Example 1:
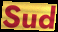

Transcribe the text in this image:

Sud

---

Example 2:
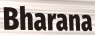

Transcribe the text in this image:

Bharana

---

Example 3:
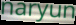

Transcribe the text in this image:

naryun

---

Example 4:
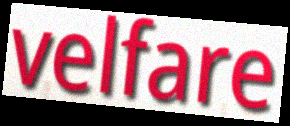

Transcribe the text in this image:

velfare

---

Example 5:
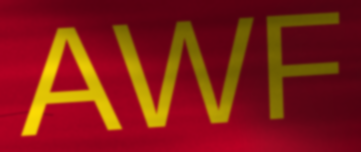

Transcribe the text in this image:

AWF